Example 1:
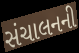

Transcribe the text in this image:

સંચાલનની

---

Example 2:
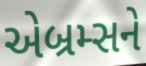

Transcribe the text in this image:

એબ્રમ્સને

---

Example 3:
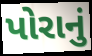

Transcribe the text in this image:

પોરાનું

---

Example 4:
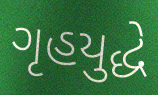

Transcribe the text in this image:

ગૃહયુદ્ધે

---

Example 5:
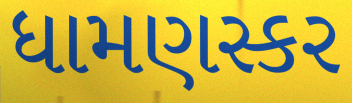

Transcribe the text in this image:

ધામણસ્કર